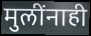
मुलींनाही